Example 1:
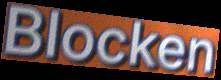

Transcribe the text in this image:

Blocken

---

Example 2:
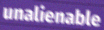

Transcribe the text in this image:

unalienable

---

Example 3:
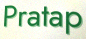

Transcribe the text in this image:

Pratap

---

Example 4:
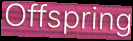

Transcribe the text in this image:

Offspring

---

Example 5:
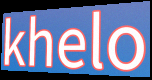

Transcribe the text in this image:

khelo